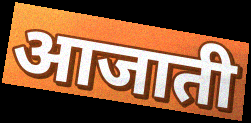
आजाती